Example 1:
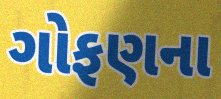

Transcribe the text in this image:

ગોફણના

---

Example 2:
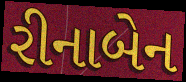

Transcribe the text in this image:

રીનાબેન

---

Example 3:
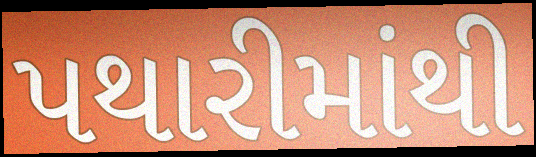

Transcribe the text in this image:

પથારીમાંથી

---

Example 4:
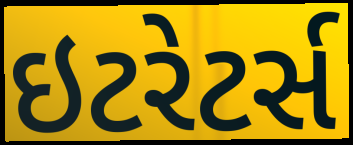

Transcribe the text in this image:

ઇટરેટર્સ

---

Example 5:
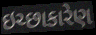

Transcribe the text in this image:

ઇચ્છાકારેણ